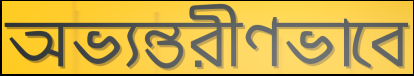
অভ্যন্তরীণভাবে